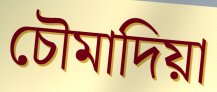
চৌমাদিয়া